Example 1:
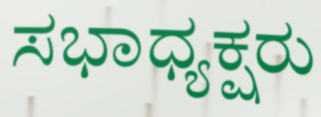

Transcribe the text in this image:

ಸಭಾಧ್ಯಕ್ಷರು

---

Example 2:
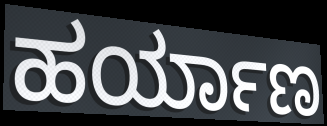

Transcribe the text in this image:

ಹರ್ಯಾಣ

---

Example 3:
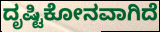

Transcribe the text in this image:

ದೃಷ್ಟಿಕೋನವಾಗಿದೆ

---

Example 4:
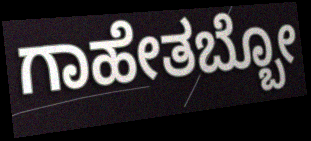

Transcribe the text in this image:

ಗಾಹೇತಬ್ಬೋ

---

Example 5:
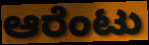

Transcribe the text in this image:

ಆರೆಂಟು